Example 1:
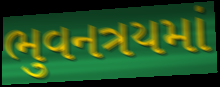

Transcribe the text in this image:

ભુવનત્રયમાં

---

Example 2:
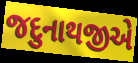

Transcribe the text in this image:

જદુનાથજીએ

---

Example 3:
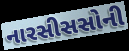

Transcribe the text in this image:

નારસીસસોની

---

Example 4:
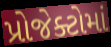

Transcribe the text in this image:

પ્રોજેક્ટોમાં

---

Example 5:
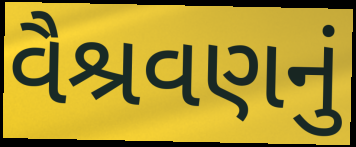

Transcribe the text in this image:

વૈશ્રવણનું